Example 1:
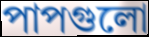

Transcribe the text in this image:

পাপগুলো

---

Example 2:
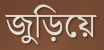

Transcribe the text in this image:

জুড়িয়ে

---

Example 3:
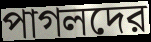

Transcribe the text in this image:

পাগলদের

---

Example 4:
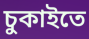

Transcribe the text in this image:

চুকাইতে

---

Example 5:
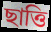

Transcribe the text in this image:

ছাত্তি